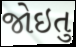
જોઇતુ